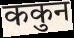
ककुन